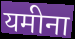
यमीना